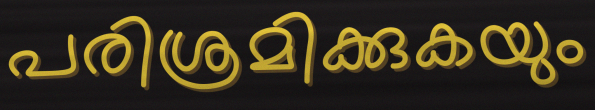
പരിശ്രമിക്കുകയും